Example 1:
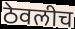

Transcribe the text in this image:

ठेवलीच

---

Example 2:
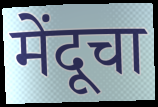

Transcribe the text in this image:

मेंदूचा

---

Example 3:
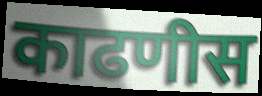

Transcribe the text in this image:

काढणीस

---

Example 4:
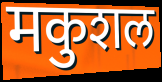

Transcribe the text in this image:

मकुशल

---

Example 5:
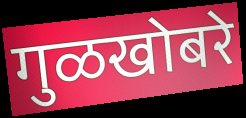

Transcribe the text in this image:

गुळखोबरे